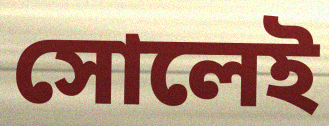
সোলেই